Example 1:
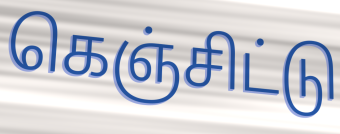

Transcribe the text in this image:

கெஞ்சிட்டு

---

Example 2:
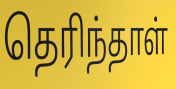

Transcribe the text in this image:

தெரிந்தாள்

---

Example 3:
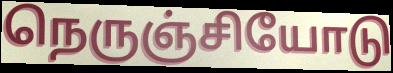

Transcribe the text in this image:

நெருஞ்சியோடு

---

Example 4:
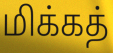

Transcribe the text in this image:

மிக்கத்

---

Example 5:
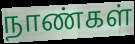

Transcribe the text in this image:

நாண்கள்